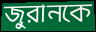
জুরানকে